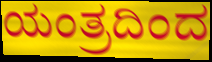
ಯಂತ್ರದಿಂದ